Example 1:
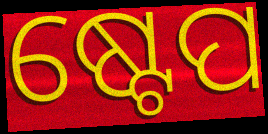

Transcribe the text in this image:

ଷ୍ଟେପ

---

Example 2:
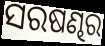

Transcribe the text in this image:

ସରଷଣ୍ଢର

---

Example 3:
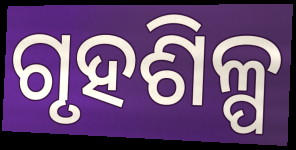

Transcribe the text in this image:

ଗୃହଶିଳ୍ପ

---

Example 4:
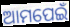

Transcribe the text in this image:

ଆମପେଇଁ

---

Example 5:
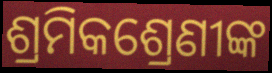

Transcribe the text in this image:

ଶ୍ରମିକଶ୍ରେଣୀଙ୍କ